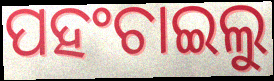
ପହଂଚାଇଲୁ